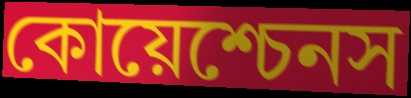
কোয়েশ্চেনস